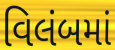
વિલંબમાં